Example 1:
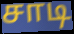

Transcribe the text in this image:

சாடி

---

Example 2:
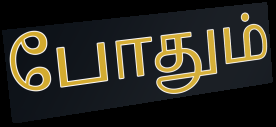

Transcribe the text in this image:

போதும்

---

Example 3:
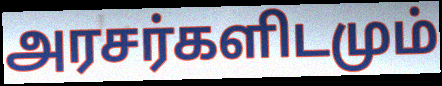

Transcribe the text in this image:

அரசர்களிடமும்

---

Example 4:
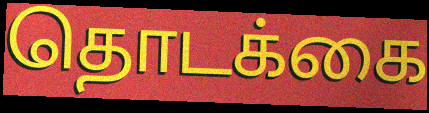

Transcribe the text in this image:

தொடக்கை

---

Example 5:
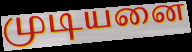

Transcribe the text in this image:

முடியனை